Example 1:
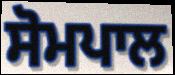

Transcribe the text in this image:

ਸੋਮਪਾਲ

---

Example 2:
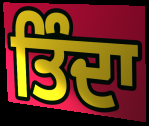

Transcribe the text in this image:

ਤਿੰਦਾ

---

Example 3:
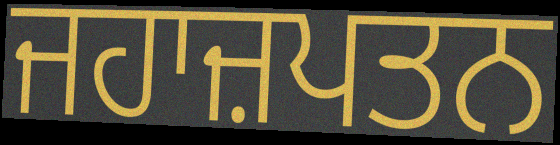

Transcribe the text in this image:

ਜਹਾਜ਼ਪਤਨ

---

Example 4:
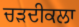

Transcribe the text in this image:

ਚੜਦੀਕਲਾ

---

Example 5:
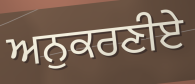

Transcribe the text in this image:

ਅਨੁਕਰਣੀਏ